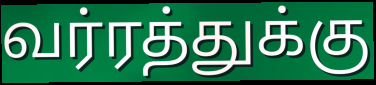
வர்ரத்துக்கு